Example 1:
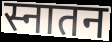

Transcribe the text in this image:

स्नातन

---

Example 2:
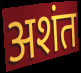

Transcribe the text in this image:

अशंत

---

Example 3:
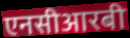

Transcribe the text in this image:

एनसीआरबी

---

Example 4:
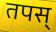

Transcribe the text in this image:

तपस्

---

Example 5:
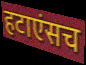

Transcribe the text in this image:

हटाएंसच